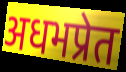
अधभप्रेत